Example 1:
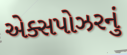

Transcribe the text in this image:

એક્સપોઝરનું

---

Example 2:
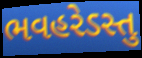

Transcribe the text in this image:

ભવહરેઽસ્તુ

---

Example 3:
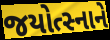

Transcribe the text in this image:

જયોત્સ્નાને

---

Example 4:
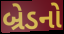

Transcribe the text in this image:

બ્રેડનો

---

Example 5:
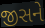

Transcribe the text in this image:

જીસને